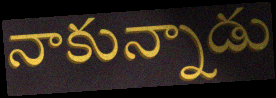
నాకున్నాడు